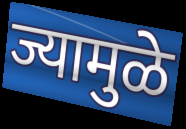
ज्यामुळे